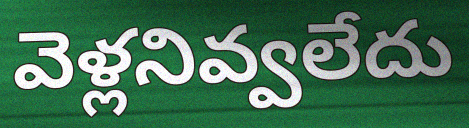
వెళ్లనివ్వలేదు